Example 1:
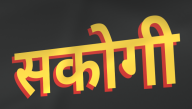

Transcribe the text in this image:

सकोगी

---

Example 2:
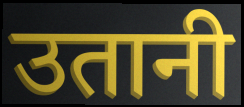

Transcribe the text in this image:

उतानी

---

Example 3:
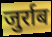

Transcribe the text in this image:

जुर्राब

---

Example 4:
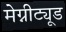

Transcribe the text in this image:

मेग्नीट्यूड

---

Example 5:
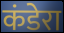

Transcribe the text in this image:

कंडेरा